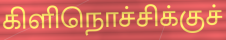
கிளிநொச்சிக்குச்